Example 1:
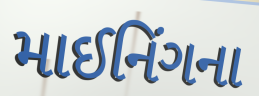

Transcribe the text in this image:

માઈનિંગના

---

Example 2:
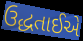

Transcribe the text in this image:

ઉદ્ધતાઈએ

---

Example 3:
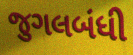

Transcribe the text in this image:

જુગલબંધી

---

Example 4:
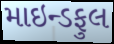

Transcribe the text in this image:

માઇન્ડફુલ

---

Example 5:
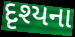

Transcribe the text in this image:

દૃશ્યના